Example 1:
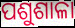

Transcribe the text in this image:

ପଶୁଶାଳା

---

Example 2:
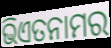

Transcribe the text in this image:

ଭିଏତନାମର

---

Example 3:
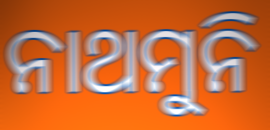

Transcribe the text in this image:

ନାଥମୁନି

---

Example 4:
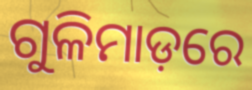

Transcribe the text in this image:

ଗୁଳିମାଡ଼ରେ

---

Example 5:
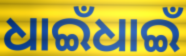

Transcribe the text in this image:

ଧାଇଁଧାଇଁ